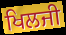
ਖਿਲਜੀ